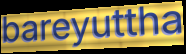
bareyuttha